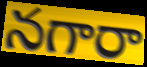
నగారా